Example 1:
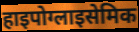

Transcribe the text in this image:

हाइपोग्लाइसेमिक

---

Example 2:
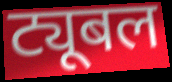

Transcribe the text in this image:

ट्यूबल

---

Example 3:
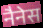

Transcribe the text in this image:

नैनेस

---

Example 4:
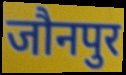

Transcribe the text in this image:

जौनपुर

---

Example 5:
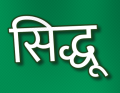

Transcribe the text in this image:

सिद्धू